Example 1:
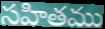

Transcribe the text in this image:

సహితము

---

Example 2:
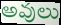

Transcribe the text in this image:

అవులు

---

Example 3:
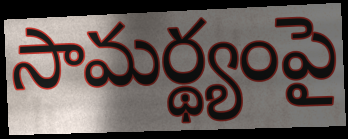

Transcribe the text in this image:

సామర్థ్యంపై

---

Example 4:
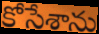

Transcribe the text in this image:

కోసేశాను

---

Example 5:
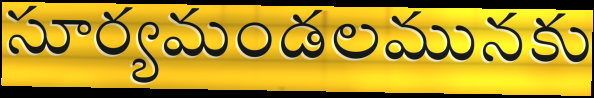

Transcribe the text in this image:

సూర్యమండలమునకు